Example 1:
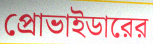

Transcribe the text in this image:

প্রোভাইডারের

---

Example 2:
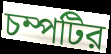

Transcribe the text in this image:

চম্পটির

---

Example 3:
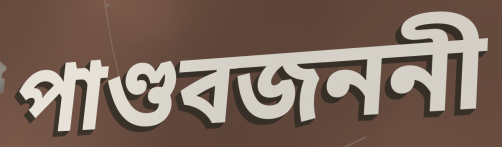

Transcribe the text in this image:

পাণ্ডবজননী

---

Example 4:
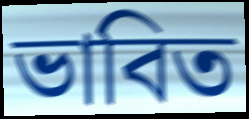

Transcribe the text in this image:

ভাবিত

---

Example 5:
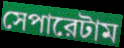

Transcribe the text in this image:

সেপারেটাম